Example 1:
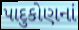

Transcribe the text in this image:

પાદુકોણનાં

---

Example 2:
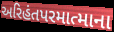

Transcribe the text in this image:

અરિહંતપરમાત્માના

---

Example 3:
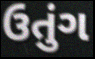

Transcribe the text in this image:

ઉતુંગ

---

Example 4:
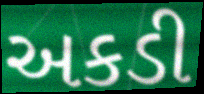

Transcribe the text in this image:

અકડી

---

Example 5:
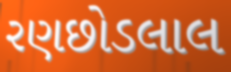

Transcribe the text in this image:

રણછોડલાલ